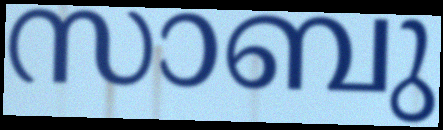
സാബു